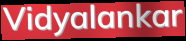
Vidyalankar